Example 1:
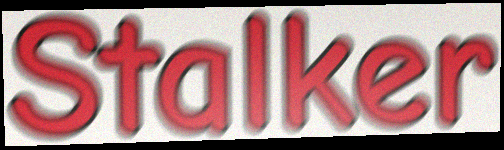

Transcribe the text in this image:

Stalker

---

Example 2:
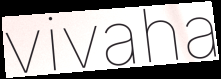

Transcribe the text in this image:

vivaha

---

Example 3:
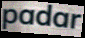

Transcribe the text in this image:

padar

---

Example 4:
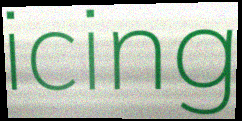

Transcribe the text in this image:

icing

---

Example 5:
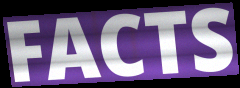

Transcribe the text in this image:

FACTS